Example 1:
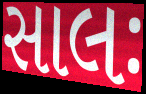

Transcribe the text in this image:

સાલઃ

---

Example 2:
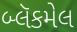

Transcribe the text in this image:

બ્લૅકમેલ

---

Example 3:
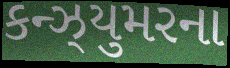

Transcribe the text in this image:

કન્ઝ્યુમરના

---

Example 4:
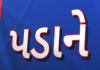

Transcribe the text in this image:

પડાને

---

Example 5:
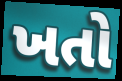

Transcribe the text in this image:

ખતો